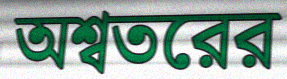
অশ্বতরের